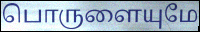
பொருளையுமே